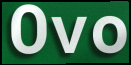
Ovo